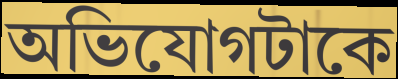
অভিযোগটাকে